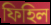
ফিহিল